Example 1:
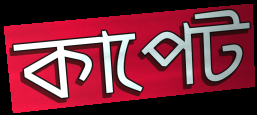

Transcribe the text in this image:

কাপেট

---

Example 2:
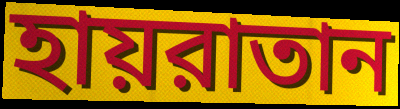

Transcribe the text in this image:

হায়রাতান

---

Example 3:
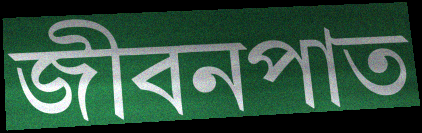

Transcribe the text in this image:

জীবনপাত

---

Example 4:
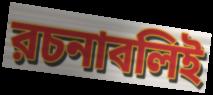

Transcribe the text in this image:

রচনাবলিই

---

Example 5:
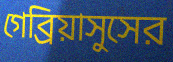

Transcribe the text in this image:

গেব্রিয়াসুসের